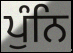
ਪੁੰਨਿ